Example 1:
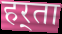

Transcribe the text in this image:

हर्ता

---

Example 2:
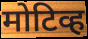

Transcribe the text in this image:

मोटिव्ह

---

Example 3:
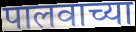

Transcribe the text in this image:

पालवाच्या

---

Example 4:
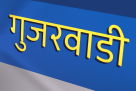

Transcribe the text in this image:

गुजरवाडी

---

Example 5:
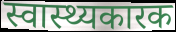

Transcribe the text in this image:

स्वास्थ्यकारक